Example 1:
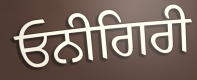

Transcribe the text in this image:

ਓਨੀਗਿਰੀ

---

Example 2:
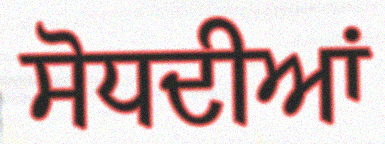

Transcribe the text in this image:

ਸੋਧਦੀਆਂ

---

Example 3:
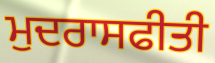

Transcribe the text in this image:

ਮੁਦਰਾਸਫੀਤੀ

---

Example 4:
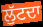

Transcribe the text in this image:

ਲੁੱਟਦਾ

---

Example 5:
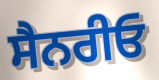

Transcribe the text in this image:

ਸੈਨਰੀਓ